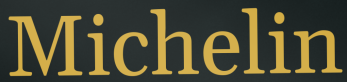
Michelin